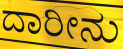
ದಾರೀನು